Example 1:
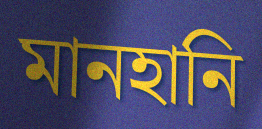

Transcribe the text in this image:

মানহানি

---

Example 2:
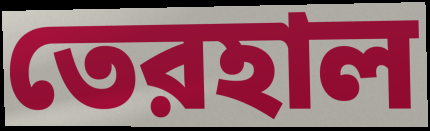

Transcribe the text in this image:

তেরহাল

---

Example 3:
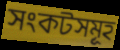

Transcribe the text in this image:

সংকটসমূহ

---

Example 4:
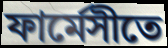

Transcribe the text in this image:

ফার্মেসীতে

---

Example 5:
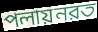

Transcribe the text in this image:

পলায়নরত